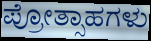
ಪ್ರೋತ್ಸಾಹಗಳು